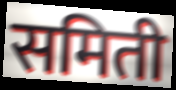
समिती